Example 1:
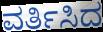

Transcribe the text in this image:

ವರ್ತಿಸಿದ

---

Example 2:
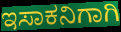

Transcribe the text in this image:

ಇಸಾಕನಿಗಾಗಿ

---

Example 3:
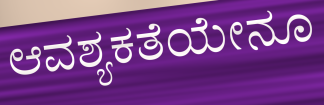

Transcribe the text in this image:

ಆವಶ್ಯಕತೆಯೇನೂ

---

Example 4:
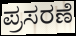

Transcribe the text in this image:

ಪ್ರಸರಣೆ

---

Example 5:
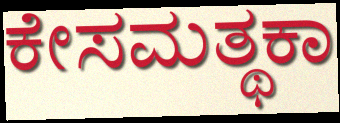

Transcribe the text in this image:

ಕೇಸಮತ್ಥಕಾ